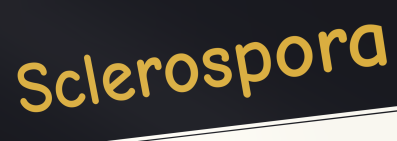
Sclerospora